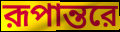
রূপান্তরে